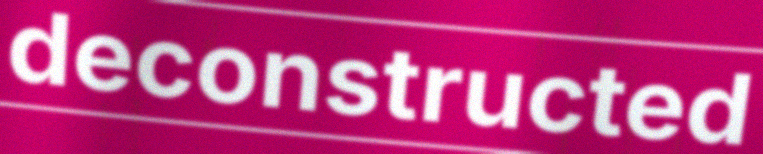
deconstructed